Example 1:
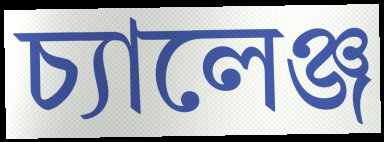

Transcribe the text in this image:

চ্যালেঞ্জ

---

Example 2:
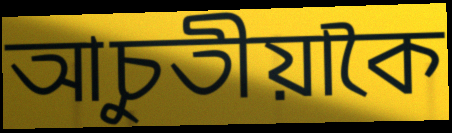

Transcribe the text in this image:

আচুতীয়াকৈ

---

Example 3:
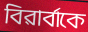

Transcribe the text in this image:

বিৱাৰ্বাকে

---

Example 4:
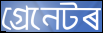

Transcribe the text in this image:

গ্ৰেনেটৰ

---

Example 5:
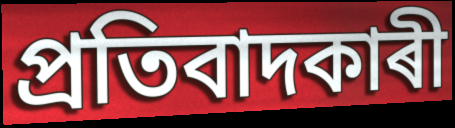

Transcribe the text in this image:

প্ৰতিবাদকাৰী